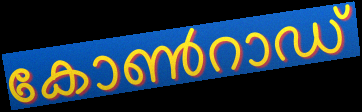
കോൺറാഡ്